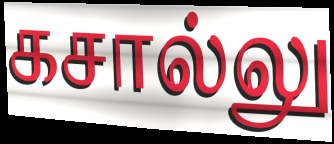
கசால்லு